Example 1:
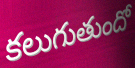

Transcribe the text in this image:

కలుగుతుందో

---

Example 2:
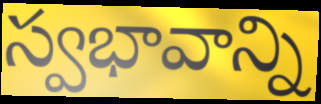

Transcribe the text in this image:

స్వభావాన్ని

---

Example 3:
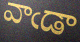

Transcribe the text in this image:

వాఁడా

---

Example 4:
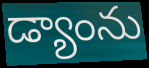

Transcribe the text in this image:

డ్యాంను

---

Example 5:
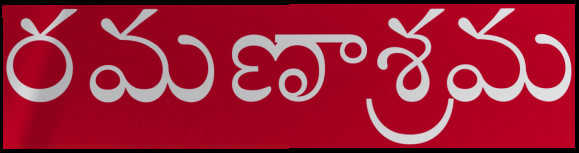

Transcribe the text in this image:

రమణాశ్రమ